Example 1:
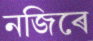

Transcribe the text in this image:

নজিৰে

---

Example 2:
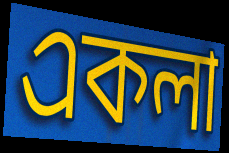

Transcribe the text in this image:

একলা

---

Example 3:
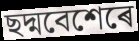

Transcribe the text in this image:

ছদ্মবেশেৰে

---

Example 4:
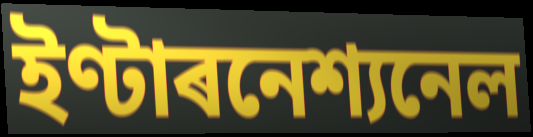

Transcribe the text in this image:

ইণ্টাৰনেশ্যনেল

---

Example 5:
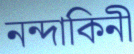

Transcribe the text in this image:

নন্দাকিনী